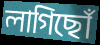
লাগিছোঁ